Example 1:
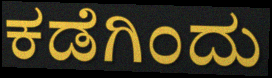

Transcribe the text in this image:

ಕಡೆಗಿಂದು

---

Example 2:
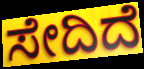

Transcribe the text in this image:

ಸೇದಿದೆ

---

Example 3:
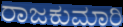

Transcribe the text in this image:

ರಾಜಕುಮಾರಿ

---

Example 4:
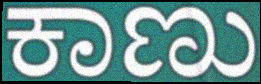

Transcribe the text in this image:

ಕಾಣು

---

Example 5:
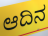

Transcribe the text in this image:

ಆದಿನ